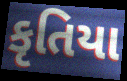
કૃતિયા